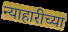
न्याहारीच्या